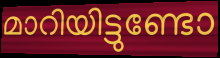
മാറിയിട്ടുണ്ടോ